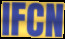
IFCN